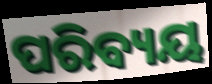
ପରିବ୍ୟୟ